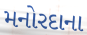
મનોરદાના